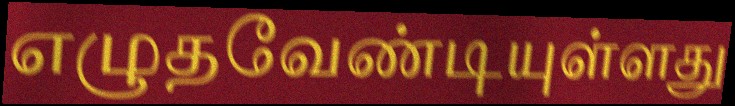
எழுதவேண்டியுள்ளது